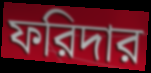
ফরিদার